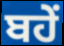
ਬਹੇਂ